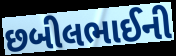
છબીલભાઈની